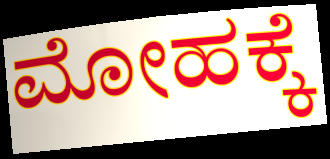
ಮೋಹಕ್ಕೆ